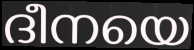
ദീനയെ